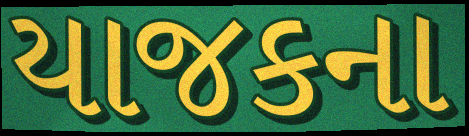
યાજકના